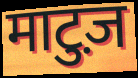
माटुज़